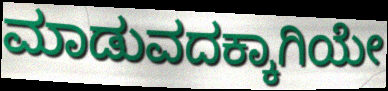
ಮಾಡುವದಕ್ಕಾಗಿಯೇ